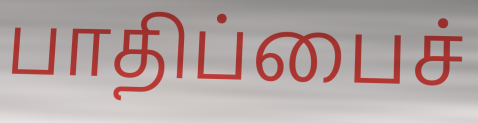
பாதிப்பைச்